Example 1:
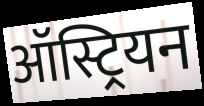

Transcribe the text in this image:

ऑस्ट्रियन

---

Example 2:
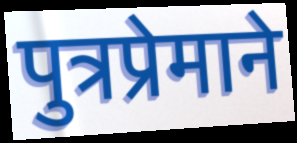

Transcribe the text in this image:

पुत्रप्रेमाने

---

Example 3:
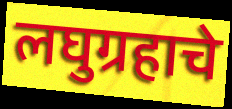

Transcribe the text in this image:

लघुग्रहाचे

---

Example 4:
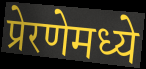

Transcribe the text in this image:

प्रेरणेमध्ये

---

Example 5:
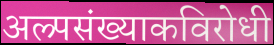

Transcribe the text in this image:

अल्पसंख्याकविरोधी